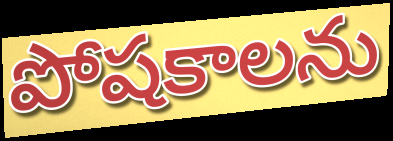
పోషకాలను